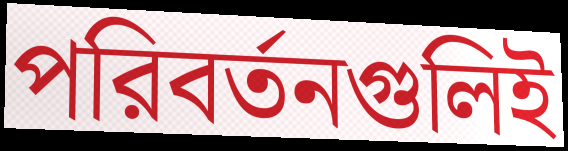
পরিবর্তনগুলিই